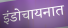
इंडोचायनात